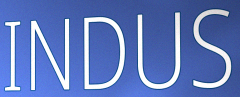
INDUS